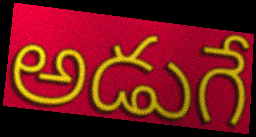
అడుగే